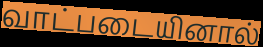
வாட்படையினால்